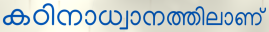
കഠിനാധ്വാനത്തിലാണ്